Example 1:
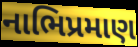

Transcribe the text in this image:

નાભિપ્રમાણ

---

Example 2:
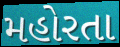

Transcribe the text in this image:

મહોરતા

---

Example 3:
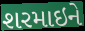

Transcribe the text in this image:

શરમાઇને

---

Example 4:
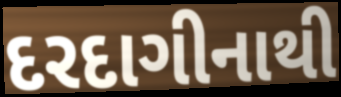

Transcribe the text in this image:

દરદાગીનાથી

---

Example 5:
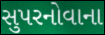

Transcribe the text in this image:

સુપરનોવાના